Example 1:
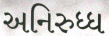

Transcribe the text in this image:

અનિરુધ્ધ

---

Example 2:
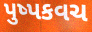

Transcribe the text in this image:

પુષ્પકવચ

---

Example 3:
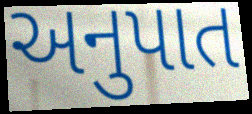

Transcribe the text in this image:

અનુપાત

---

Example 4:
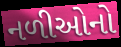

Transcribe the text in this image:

નળીઓનો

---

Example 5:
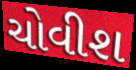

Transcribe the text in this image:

ચોવીશ